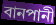
বানপানী